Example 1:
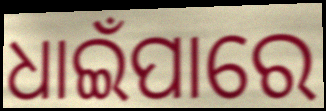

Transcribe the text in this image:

ଧାଇଁପାରେ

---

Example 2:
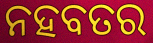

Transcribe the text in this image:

ନହବତର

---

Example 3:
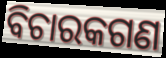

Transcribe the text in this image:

ବିଚାରକଗଣ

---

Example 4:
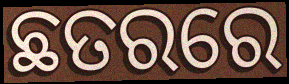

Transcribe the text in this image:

ଛତରରେ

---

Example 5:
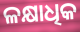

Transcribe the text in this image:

ଳକ୍ଷାଧିକ